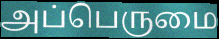
அப்பெருமை